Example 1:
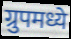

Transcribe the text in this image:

ग्रुपमध्ये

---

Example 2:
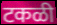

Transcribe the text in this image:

टकळी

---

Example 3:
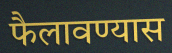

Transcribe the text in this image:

फैलावण्यास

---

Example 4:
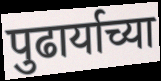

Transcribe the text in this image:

पुढार्याच्या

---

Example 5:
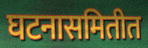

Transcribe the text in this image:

घटनासमितीत